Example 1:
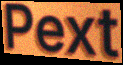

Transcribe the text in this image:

Pext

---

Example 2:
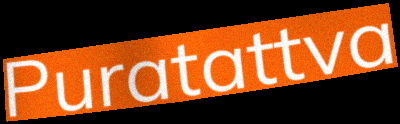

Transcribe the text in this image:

Puratattva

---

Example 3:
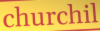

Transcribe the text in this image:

churchil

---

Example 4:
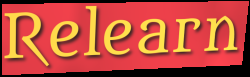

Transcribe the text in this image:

Relearn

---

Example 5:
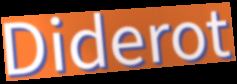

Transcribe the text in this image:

Diderot